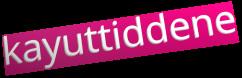
kayuttiddene